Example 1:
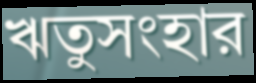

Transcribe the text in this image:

ঋতুসংহার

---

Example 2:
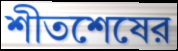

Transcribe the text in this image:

শীতশেষের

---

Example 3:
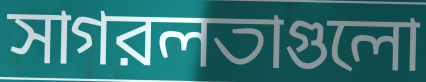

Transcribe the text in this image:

সাগরলতাগুলো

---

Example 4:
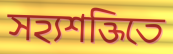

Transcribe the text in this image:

সহ্যশক্তিতে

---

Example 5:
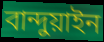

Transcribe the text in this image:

বান্দুয়াইন